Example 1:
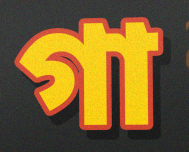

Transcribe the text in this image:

গা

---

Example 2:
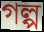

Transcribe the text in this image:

গল্প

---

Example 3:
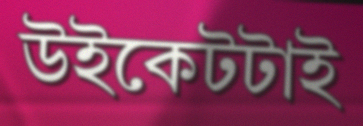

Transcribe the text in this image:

উইকেটটাই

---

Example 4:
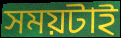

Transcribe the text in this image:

সময়টাই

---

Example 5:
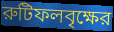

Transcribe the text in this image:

রুটিফলবৃক্ষের